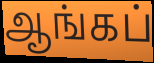
ஆங்கப்